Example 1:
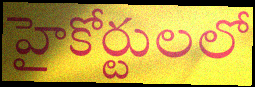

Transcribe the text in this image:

హైకోర్టులలో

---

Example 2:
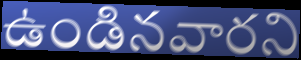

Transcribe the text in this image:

ఉండినవారని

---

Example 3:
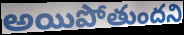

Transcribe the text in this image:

అయిపోతుందని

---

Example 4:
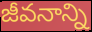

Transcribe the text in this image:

జీవనాన్ని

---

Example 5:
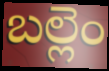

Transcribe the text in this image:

బల్లెం